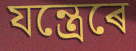
যন্ত্ৰেৰে